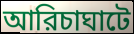
আরিচাঘাটে